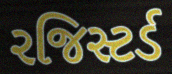
રજિસ્ટર્ડ